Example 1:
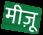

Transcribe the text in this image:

मीज़ू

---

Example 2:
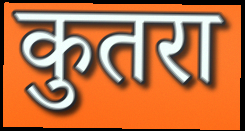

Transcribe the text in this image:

कुतरा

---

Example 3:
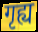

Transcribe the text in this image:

गृह्य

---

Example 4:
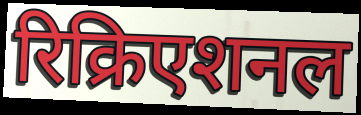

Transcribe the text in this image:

रिक्रिएशनल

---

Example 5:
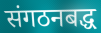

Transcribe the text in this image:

संगठनबद्ध